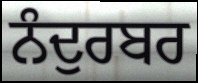
ਨੰਦੁਰਬਰ